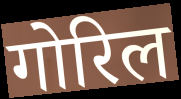
गोरिल